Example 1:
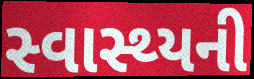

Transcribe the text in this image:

સ્વાસ્થ્યની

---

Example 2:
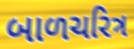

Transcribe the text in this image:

બાળચરિત્ર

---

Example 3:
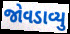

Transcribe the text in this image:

જોવડાવ્યુ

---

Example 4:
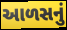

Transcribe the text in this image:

આળસનું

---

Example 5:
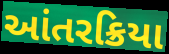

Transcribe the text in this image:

આંતરક્રિયા